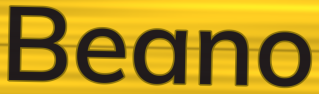
Beano